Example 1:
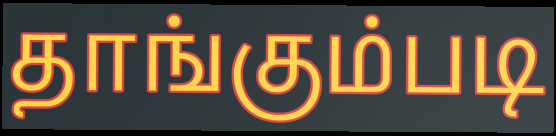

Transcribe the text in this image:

தாங்கும்படி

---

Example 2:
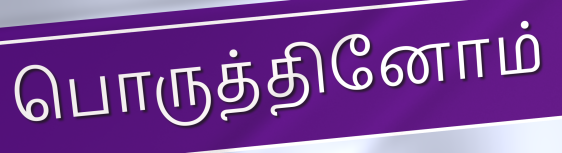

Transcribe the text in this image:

பொருத்தினோம்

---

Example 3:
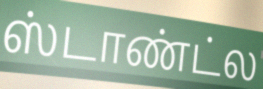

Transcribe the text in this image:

ஸ்டாண்ட்ல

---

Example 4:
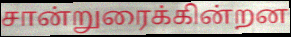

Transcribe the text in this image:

சான்றுரைக்கின்றன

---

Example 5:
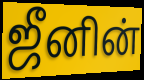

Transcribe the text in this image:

ஜீனின்